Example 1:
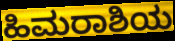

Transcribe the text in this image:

ಹಿಮರಾಶಿಯ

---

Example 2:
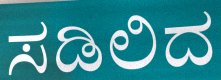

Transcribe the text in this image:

ಸಡಿಲಿದ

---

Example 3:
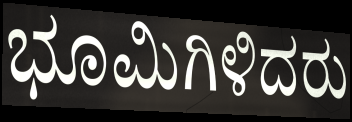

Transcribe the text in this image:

ಭೂಮಿಗಿಳಿದರು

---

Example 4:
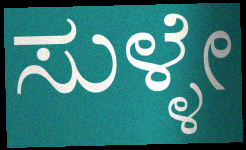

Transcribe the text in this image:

ಸುಳ್ಳೇ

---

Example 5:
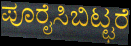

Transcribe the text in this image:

ಪೂರೈಸಿಬಿಟ್ಟರೆ